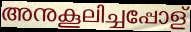
അനുകൂലിച്ചപ്പോള്